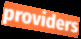
providers